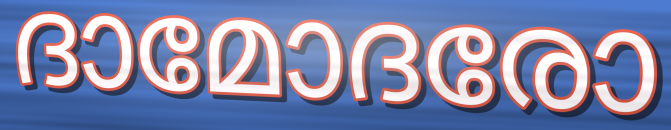
ദാമോദരോ